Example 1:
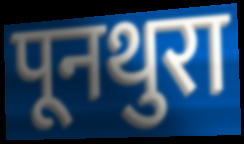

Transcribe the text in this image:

पूनथुरा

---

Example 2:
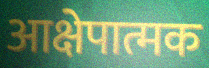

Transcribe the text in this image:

आक्षेपात्मक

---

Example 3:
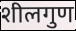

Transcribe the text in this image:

शीलगुण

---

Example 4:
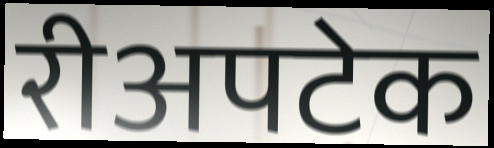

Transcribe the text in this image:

रीअपटेक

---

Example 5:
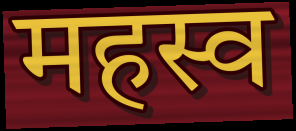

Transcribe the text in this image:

महस्व